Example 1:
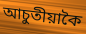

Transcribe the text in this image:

আচুতীয়াকৈ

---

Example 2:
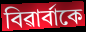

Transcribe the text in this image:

বিৱাৰ্বাকে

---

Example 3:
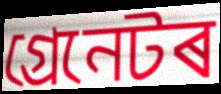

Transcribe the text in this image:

গ্ৰেনেটৰ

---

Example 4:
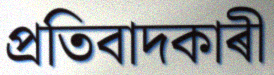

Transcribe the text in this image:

প্ৰতিবাদকাৰী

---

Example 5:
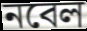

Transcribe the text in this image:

নবেল